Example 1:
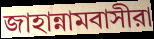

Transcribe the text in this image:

জাহান্নামবাসীরা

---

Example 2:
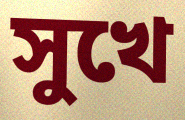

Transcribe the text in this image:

সুখে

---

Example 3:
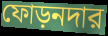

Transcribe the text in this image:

ফোড়নদার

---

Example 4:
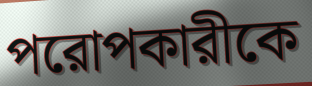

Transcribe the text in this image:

পরোপকারীকে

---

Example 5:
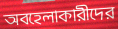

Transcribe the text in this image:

অবহেলাকারীদের